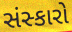
સંસ્કારો